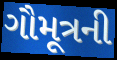
ગૌમૂત્રની